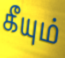
கீயும்